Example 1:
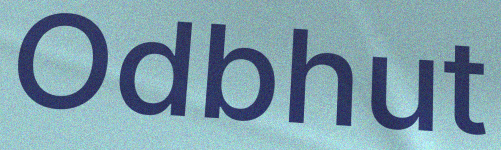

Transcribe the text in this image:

Odbhut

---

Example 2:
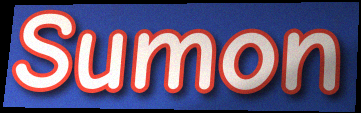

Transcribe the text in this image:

Sumon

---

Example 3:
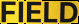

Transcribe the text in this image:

FIELD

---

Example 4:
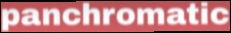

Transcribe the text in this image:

panchromatic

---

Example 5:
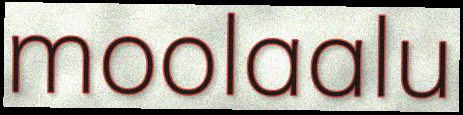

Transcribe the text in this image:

moolaalu